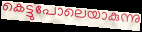
കെട്ടുപോലെയാകുന്നു